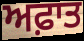
ਅਫ਼ਾਤ